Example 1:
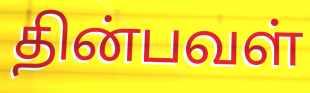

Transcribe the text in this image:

தின்பவள்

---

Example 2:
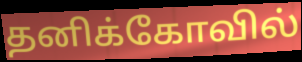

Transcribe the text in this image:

தனிக்கோவில்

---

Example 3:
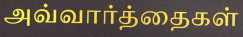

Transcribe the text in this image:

அவ்வார்த்தைகள்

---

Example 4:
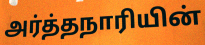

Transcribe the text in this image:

அர்த்தநாரியின்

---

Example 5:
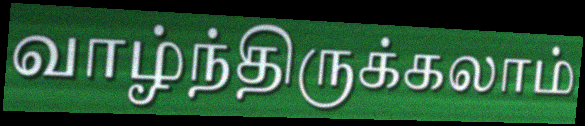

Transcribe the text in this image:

வாழ்ந்திருக்கலாம்